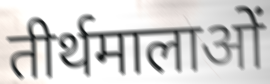
तीर्थमालाओं